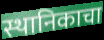
स्थानिकाचा